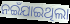
ନଇଁଯାଇଥିଲା